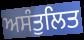
ਅਸੰਤੁਲਿਤ